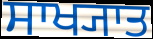
ਸਾਖ੍ਯਾਤ